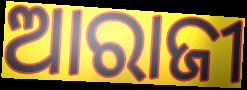
ଆରାଜୀ